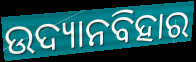
ଉଦ୍ୟାନବିହାର